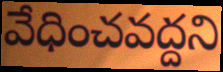
వేధించవద్దని